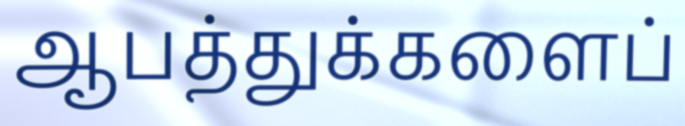
ஆபத்துக்களைப்